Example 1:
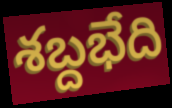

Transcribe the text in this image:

శబ్దభేది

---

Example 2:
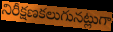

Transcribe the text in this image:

నిరీక్షణకలుగునట్లుగా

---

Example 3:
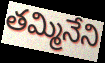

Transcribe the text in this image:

తమ్మినేని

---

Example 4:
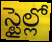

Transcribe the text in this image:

స్టైల్లో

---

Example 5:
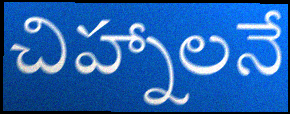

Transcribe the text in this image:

చిహ్నాలనే